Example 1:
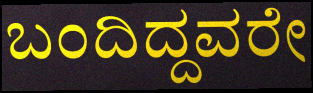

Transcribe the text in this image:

ಬಂದಿದ್ದವರೇ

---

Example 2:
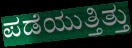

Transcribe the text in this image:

ಪಡೆಯುತ್ತಿತ್ತು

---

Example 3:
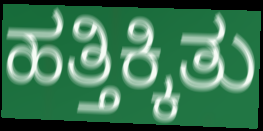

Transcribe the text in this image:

ಹತ್ತಿಕ್ಕಿತು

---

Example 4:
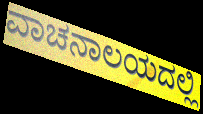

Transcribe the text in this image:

ವಾಚನಾಲಯದಲ್ಲಿ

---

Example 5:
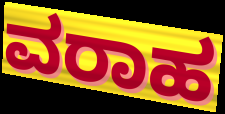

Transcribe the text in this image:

ವರಾಹ